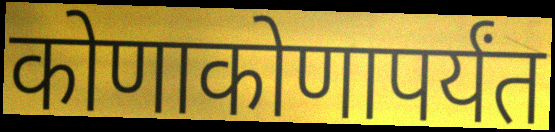
कोणाकोणापर्यंत